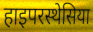
हाइपरस्थेसिया